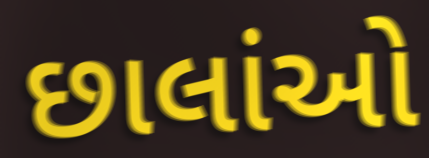
છાલાંઓ